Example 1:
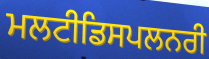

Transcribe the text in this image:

ਮਲਟੀਡਿਸਪਲਨਰੀ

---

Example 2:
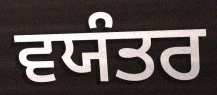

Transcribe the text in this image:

ਵਯੰਤਰ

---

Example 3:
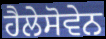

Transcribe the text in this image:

ਹੈਲੇਸੋਵੇਨ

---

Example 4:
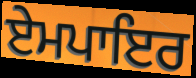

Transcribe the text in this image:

ਏਮਪਾਇਰ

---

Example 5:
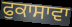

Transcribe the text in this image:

ਫੁਕਾਸਾਵਾ